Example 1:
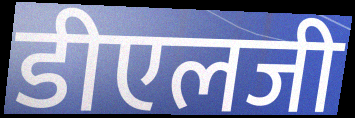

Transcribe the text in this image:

डीएलजी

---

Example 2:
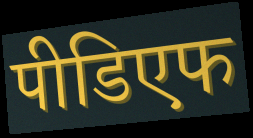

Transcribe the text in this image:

पीडिएफ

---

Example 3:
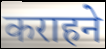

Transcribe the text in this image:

कराहने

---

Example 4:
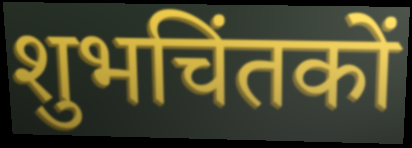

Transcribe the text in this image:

शुभचिंतकों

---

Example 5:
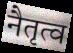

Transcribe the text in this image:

नैतृत्व